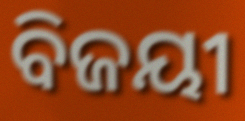
ବିଜୟୀ